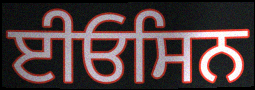
ਈਓਸਿਨ